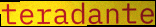
teradante